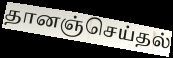
தானஞ்செய்தல்